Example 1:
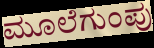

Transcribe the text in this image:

ಮೂಲೆಗುಂಪು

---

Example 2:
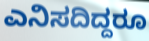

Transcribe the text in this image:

ಎನಿಸದಿದ್ದರೂ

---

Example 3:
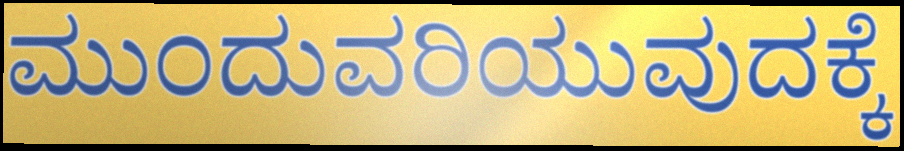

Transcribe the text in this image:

ಮುಂದುವರಿಯುವುದಕ್ಕೆ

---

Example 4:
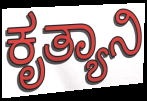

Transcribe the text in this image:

ಕೃತ್ಯಾನಿ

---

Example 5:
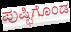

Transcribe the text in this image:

ಪುಷ್ಟಿಗೊಂಡ